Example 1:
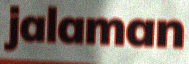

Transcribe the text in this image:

jalaman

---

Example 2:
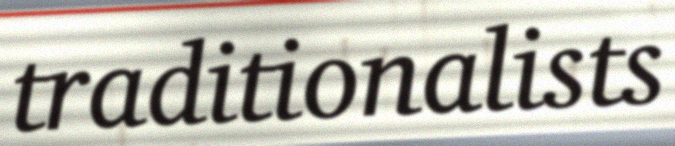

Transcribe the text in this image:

traditionalists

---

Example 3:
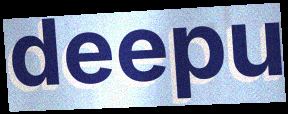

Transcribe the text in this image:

deepu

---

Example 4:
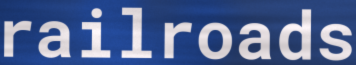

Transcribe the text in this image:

railroads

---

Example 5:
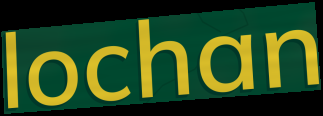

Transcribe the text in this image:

lochan